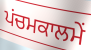
ਪਂਚਮਕਾਲਮੇਂ